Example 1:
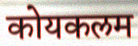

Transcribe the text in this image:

कोयकलम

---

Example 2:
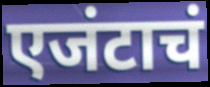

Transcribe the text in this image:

एजंटाचं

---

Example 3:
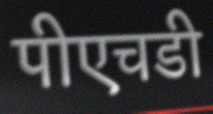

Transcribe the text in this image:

पीएचडी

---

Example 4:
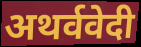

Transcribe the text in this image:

अथर्ववेदी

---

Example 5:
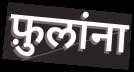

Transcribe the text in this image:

फ़ुलांना